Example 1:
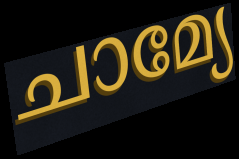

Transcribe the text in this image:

ചാമ്യേ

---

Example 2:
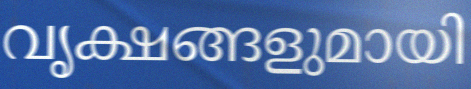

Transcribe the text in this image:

വൃക്ഷങ്ങളുമായി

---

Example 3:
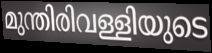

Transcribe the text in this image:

മുന്തിരിവള്ളിയുടെ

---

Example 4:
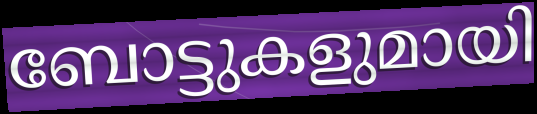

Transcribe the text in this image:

ബോട്ടുകളുമായി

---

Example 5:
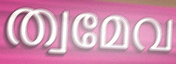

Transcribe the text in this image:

ത്വമേവ